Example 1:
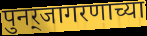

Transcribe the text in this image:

पुनर्जागरणाच्या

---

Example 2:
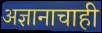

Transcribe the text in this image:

अज्ञानाचाही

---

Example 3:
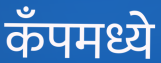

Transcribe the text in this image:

कॅंपमध्ये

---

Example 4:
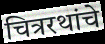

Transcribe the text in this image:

चित्ररथांचे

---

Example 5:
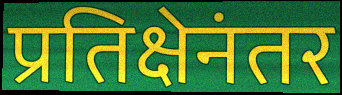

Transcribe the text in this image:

प्रतिक्षेनंतर